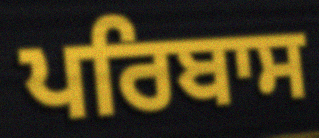
ਪਰਿਬਾਸ